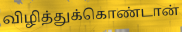
விழித்துக்கொண்டான்